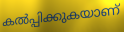
കൽപ്പിക്കുകയാണ്